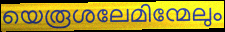
യെരൂശലേമിന്മേലും